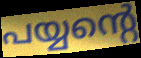
പയ്യന്റെ